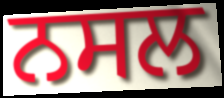
ਨਸਲ